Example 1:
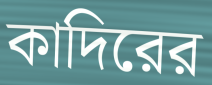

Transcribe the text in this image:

কাদিরের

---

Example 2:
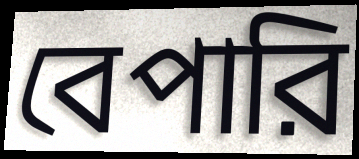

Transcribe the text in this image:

বেপারি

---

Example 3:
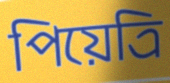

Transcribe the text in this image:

পিয়েত্রি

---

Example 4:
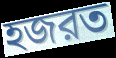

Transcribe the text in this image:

হজরত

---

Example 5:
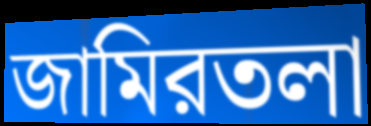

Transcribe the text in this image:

জামিরতলা